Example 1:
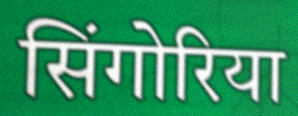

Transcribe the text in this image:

सिंगोरिया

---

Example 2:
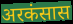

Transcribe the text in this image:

अरकंसास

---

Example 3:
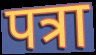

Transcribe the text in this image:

पत्रा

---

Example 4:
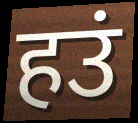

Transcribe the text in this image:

हउं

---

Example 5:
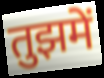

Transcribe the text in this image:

तुझमें